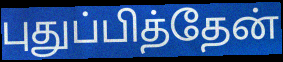
புதுப்பித்தேன்